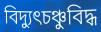
বিদ্যুৎচঞ্চুবিদ্ধ